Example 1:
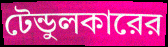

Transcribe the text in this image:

টেন্ডুলকারের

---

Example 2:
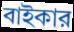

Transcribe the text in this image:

বাইকার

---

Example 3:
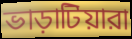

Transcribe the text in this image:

ভাড়াটিয়ারা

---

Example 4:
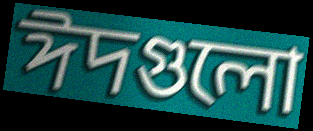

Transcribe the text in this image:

ঈদগুলো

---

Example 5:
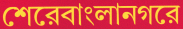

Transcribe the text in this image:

শেরেবাংলানগরে